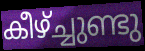
കീഴ്ച്ചുണ്ടു